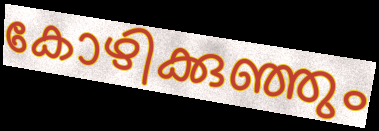
കോഴിക്കുഞ്ഞും